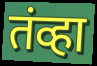
तंव्हा